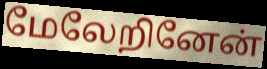
மேலேறினேன்